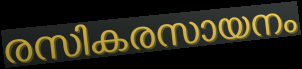
രസികരസായനം